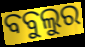
ବବୁଲୁର